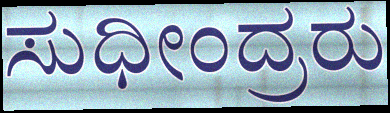
ಸುಧೀಂದ್ರರು